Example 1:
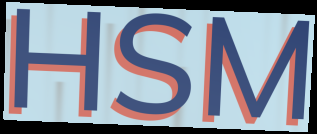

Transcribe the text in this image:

HSM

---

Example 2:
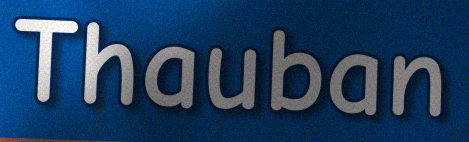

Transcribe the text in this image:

Thauban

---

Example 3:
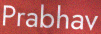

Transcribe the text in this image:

Prabhav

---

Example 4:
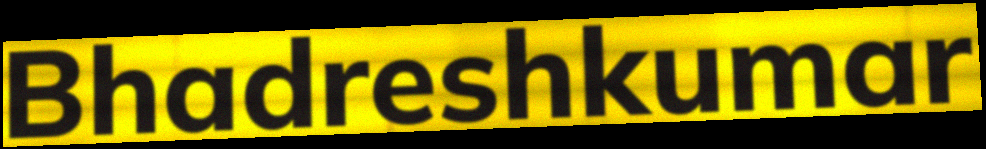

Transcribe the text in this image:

Bhadreshkumar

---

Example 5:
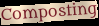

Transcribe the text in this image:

Composting